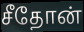
சீதோன்